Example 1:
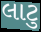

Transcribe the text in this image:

લાટુ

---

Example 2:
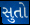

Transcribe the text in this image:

સુતો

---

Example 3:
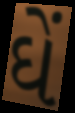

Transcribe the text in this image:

ઘેં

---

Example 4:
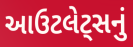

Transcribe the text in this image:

આઉટલેટ્સનું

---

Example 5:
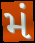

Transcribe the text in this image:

મં